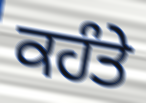
ਕਹੰਤੇ